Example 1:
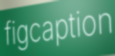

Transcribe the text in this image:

figcaption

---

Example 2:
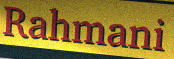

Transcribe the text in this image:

Rahmani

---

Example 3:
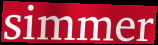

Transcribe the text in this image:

simmer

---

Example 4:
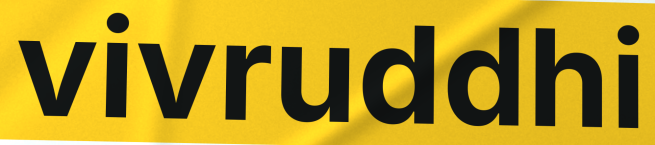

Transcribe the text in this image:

vivruddhi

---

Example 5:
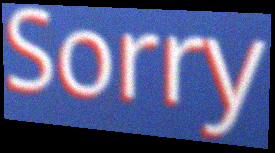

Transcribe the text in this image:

Sorry